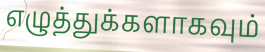
எழுத்துக்களாகவும்